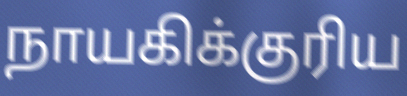
நாயகிக்குரிய